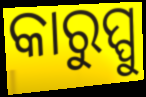
କାରୁପ୍ପୁ